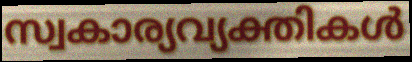
സ്വകാര്യവ്യക്തികൾ